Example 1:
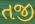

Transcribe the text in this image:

તજી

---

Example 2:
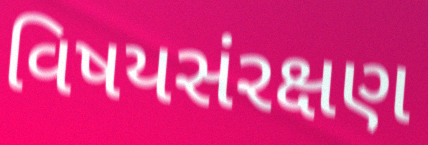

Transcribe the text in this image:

વિષયસંરક્ષણ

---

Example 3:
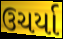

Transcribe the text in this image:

ઉચર્યા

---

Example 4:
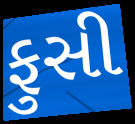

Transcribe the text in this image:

ફુસી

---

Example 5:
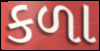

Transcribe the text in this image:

કળા